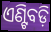
ଏଣ୍ଟିବଡ଼ି